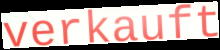
verkauft